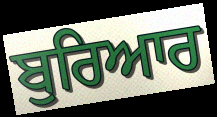
ਬੁਰਿਆਰ